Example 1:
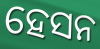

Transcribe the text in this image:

ହେସନ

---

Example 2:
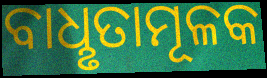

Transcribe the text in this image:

ବାଧୢତାମୂଳକ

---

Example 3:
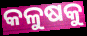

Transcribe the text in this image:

କଳୁଷକୁ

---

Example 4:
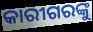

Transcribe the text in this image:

କାରୀଗରଙ୍କୁ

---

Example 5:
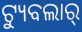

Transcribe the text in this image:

ଟ୍ୟୁବଲାର୍